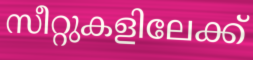
സീറ്റുകളിലേക്ക്